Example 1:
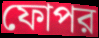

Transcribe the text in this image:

ফোপর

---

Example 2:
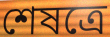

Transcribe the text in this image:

শেষত্রে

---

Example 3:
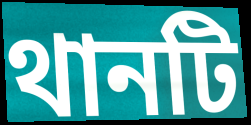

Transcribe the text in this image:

থানটি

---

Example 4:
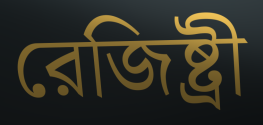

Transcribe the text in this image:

রেজিষ্ট্রী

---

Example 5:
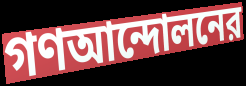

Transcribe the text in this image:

গণআন্দোলনের